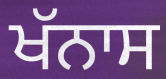
ਖੱਨਾਸ